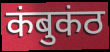
कंबुकंठ